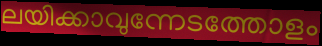
ലയിക്കാവുന്നേടത്തോളം